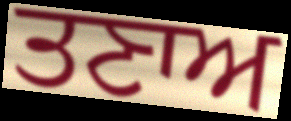
ਤਣਾਅ